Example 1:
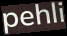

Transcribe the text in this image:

pehli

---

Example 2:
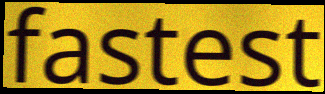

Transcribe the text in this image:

fastest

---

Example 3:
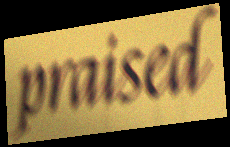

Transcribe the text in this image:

praised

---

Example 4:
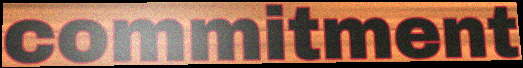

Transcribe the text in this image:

commitment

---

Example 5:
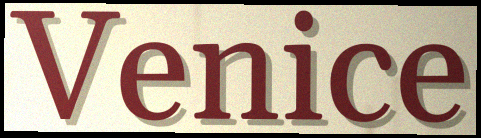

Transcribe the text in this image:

Venice